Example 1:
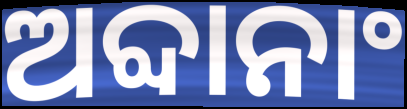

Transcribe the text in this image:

ଅବ୍ଦାନାଂ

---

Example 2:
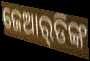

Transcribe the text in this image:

ଜେଆର୍‌ଡିଙ୍କ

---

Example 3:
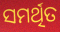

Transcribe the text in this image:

ସମର୍ଥିତ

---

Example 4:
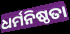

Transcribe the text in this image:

ଧର୍ମନିଷ୍ଠତା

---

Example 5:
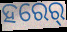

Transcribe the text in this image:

ହରେର୍